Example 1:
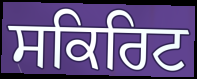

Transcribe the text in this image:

ਸਕਿਰਿਟ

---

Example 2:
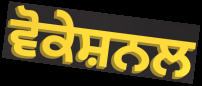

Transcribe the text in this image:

ਵੋਕੇਸ਼ਨਲ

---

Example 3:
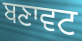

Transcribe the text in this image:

ਬਣਾਵਟ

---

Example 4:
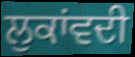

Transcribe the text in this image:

ਲੁਕਾਂਵਦੀ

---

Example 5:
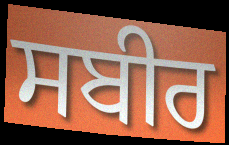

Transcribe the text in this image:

ਸਬੀਰ